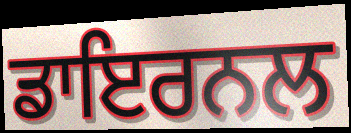
ਡਾਇਰਨਲ